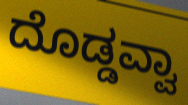
ದೊಡ್ಡವ್ವಾ